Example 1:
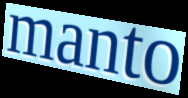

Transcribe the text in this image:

manto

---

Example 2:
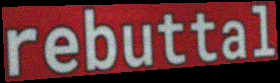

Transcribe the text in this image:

rebuttal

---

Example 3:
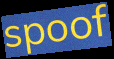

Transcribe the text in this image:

spoof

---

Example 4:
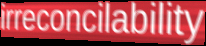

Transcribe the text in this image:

irreconcilability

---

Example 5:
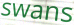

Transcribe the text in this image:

swans